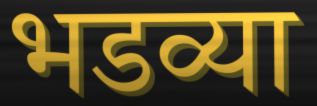
भडव्या